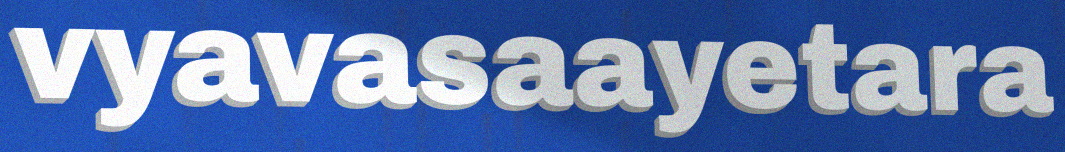
vyavasaayetara